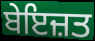
ਬੇਇਜ਼ਤ